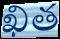
ఖిత